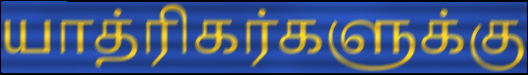
யாத்ரிகர்களுக்கு